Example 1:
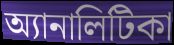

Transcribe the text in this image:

অ্যানালিটিকা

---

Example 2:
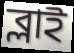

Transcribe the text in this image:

ব্লাই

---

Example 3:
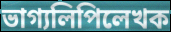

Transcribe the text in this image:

ভাগ্যলিপিলেখক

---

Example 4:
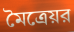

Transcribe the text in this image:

মৈত্রেয়র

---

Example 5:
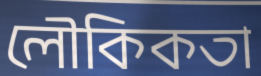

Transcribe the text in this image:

লৌকিকতা